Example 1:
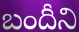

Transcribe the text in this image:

బందీని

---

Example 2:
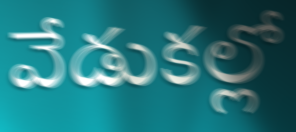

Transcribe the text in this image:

వేడుకల్లో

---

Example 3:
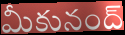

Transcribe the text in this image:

మీకునంద్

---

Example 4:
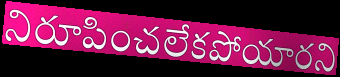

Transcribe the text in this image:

నిరూపించలేకపోయారని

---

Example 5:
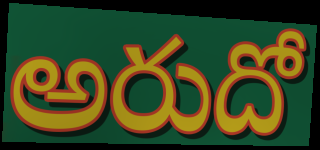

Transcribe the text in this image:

అరుదో